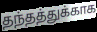
தந்தத்துக்காக